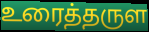
உரைத்தருள